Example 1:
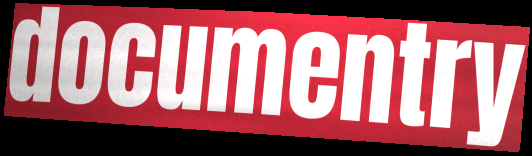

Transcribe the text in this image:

documentry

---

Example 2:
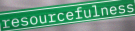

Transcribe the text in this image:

resourcefulness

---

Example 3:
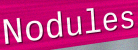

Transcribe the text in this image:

Nodules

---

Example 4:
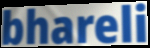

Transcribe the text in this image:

bhareli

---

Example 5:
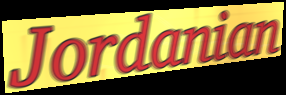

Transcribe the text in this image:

Jordanian